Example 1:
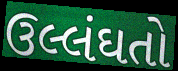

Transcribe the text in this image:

ઉલ્લંઘતો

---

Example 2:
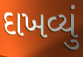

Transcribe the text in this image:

દાખવ્યું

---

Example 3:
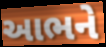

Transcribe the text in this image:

આભને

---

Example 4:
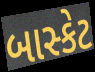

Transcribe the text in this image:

બાસ્કેટ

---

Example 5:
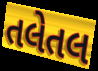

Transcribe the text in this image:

તલેતલ